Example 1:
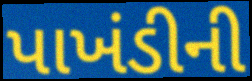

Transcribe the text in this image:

પાખંડીની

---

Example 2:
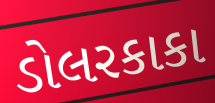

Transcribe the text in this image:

ડોલરકાકા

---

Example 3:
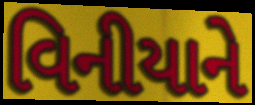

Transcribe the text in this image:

વિનીયાને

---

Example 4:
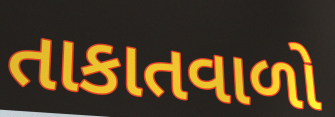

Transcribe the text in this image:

તાકાતવાળો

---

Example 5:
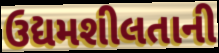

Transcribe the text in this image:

ઉદ્યમશીલતાની